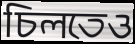
চিলতেও